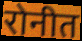
रोनीत